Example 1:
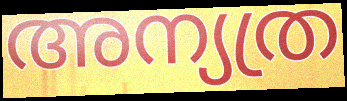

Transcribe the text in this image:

അന്യത്ര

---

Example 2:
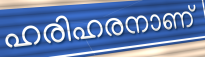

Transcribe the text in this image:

ഹരിഹരനാണ്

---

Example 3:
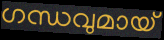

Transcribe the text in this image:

ഗന്ധവുമായ്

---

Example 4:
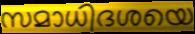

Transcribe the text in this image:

സമാധിദശയെ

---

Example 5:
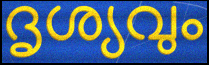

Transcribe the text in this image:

ദൃശ്യവും